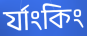
র্যাংকিং